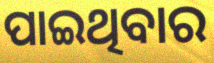
ପାଇଥିବାର